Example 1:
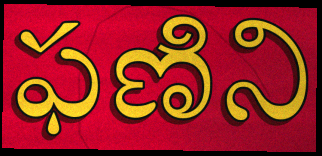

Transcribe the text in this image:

ఫణిని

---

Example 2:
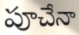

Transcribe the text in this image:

పూచేనా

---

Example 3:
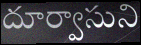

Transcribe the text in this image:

దూర్వాసుని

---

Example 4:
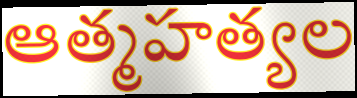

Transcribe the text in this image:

ఆత్మహత్యల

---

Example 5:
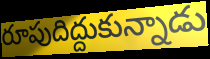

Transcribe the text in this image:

రూపుదిద్దుకున్నాడు